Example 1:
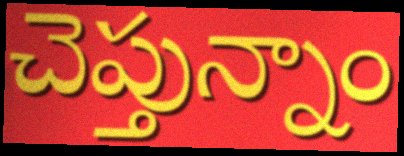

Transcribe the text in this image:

చెప్తున్నాం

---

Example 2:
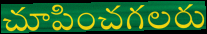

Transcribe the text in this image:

చూపించగలరు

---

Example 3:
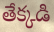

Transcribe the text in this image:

తేక్కడి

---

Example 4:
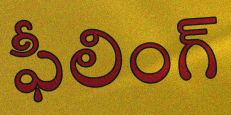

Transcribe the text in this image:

ఫీలింగ్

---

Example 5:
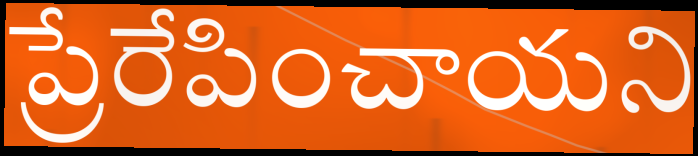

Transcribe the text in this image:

ప్రేరేపించాయని